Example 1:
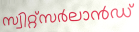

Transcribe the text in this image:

സ്വിറ്റ്സർലാൻഡ്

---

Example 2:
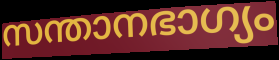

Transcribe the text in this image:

സന്താനഭാഗ്യം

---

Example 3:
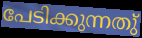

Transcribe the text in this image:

പേടിക്കുന്നതു്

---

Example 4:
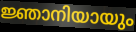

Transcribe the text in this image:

ജ്ഞാനിയായും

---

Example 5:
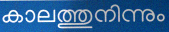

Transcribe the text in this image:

കാലത്തുനിന്നും